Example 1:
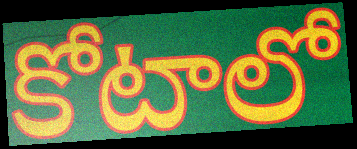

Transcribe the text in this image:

కోటాలో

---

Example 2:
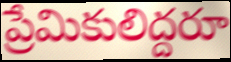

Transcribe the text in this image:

ప్రేమికులిద్దరూ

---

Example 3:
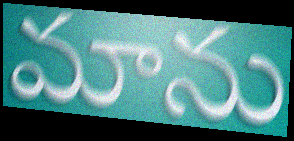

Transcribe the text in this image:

మాను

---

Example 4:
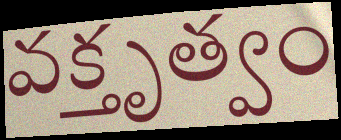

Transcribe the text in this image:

వక్తృత్వం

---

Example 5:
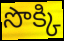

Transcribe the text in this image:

సొక్కి